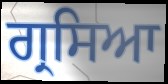
ਗ੍ਰਸਿਆ